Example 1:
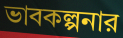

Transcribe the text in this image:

ভাবকল্পনার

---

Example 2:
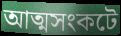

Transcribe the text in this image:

আত্মসংকটে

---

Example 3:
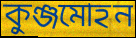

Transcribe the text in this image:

কুঞ্জমোহন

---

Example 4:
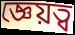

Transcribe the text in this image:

জ্ঞেয়ত্ব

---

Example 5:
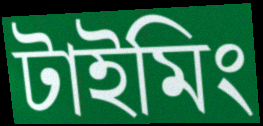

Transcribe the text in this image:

টাইমিং